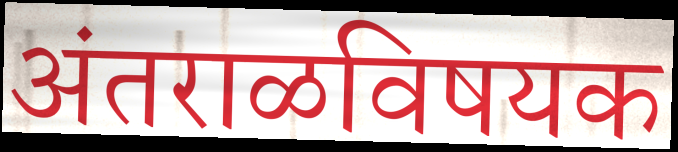
अंतराळविषयक